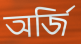
অর্জি